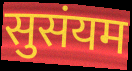
सुसंयम